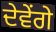
ਦੇਵੇਂਗੇ